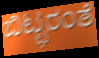
ಬಿಟ್ಟರಂತೆ